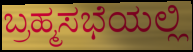
ಬ್ರಹ್ಮಸಭೆಯಲ್ಲಿ